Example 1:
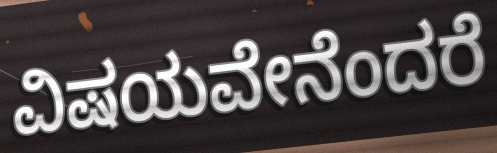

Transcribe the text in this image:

ವಿಷಯವೇನೆಂದರೆ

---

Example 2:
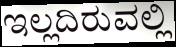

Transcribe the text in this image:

ಇಲ್ಲದಿರುವಲ್ಲಿ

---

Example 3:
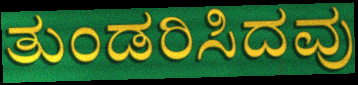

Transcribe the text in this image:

ತುಂಡರಿಸಿದವು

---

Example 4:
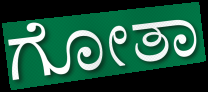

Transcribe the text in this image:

ಗೋತಾ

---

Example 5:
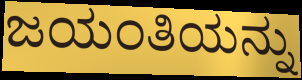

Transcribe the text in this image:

ಜಯಂತಿಯನ್ನು